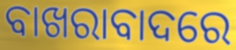
ବାଖରାବାଦରେ